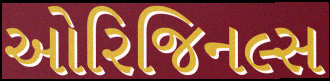
ઓરિજિનલ્સ